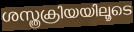
ശസ്ത്രക്രിയയിലൂടെ